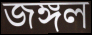
জঙ্গল